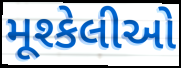
મૂશ્કેલીઓ